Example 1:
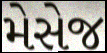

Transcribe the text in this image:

મેસેજ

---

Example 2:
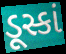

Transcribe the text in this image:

ડૂસ્કાં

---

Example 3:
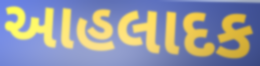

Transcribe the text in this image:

આહલાદક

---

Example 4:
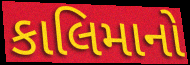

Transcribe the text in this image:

કાલિમાનો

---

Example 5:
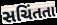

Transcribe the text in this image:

સચિંતતા